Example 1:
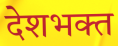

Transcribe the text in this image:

देशभक्त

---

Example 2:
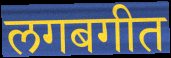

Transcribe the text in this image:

लगबगीत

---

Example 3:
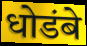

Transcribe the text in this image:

धोडंबे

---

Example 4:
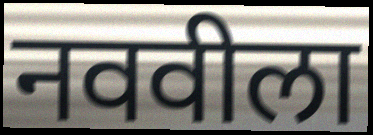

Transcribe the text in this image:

नववीला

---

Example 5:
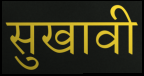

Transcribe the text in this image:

सुखावी